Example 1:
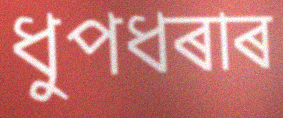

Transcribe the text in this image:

ধুপধৰাৰ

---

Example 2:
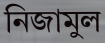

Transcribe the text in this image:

নিজামুল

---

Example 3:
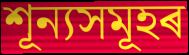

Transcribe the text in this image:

শূন্যসমূহৰ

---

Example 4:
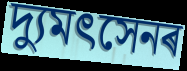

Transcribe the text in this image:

দ্যুমৎসেনৰ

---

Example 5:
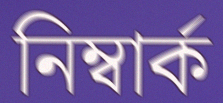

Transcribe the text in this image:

নিম্বাৰ্ক